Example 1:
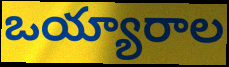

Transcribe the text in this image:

ఒయ్యారాల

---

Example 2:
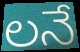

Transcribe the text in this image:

లనే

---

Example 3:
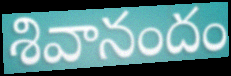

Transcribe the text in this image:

శివానందం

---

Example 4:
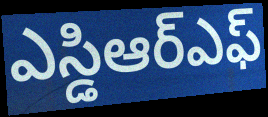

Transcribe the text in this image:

ఎస్డిఆర్ఎఫ్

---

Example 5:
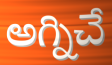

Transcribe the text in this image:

అగ్నిచే